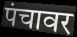
पंचावर